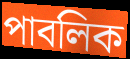
পাবলিক